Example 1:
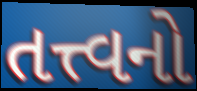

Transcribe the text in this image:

તત્ત્વનો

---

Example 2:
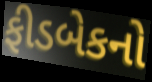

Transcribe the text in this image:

ફીડબેકનો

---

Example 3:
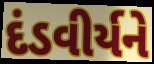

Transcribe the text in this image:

દંડવીર્યને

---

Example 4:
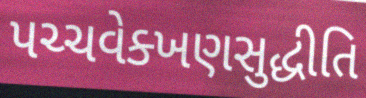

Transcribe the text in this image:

પચ્ચવેક્ખણસુદ્ધીતિ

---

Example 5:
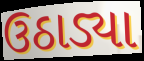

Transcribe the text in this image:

ઉઠાડ્યા